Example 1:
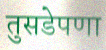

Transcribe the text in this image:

तुसडेपणा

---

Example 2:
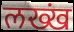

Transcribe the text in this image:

लख्खं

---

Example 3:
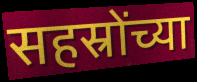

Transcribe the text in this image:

सहस्रोंच्या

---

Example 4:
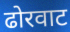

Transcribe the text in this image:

ढोरवाट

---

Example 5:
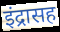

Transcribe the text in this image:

इंद्रासह